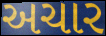
અચાર